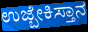
ಉಜ್ಬೇಕಿಸ್ತಾನ